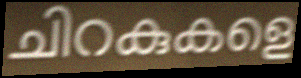
ചിറകുകളെ